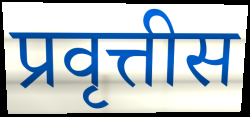
प्रवृत्तीस